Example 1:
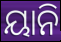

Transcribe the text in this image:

ୟାନି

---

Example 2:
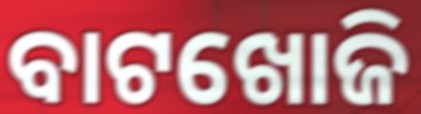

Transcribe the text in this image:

ବାଟଖୋଜି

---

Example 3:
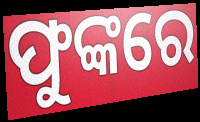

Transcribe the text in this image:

ଫୁଙ୍କରେ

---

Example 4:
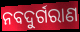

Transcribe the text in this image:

ନବଦୁର୍ଗରାଣ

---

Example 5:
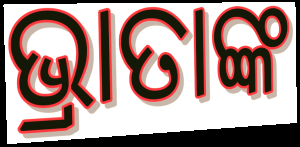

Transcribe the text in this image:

ଭ୍ରାତାଙ୍କ